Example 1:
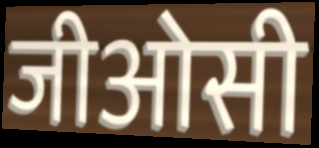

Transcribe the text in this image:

जीओसी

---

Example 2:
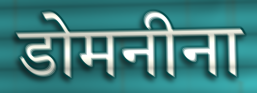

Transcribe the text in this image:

डोमनीना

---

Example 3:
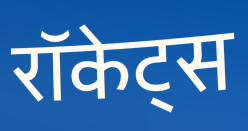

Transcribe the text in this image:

रॉकेट्स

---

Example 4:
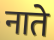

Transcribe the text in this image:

नाते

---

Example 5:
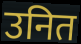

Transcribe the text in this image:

उनित